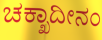
ಚಕ್ಖಾದೀನಂ